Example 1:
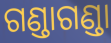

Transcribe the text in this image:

ଗଣ୍ଡାଗଣ୍ଡା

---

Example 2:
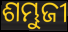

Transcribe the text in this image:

ଶମ୍ଭୁଜୀ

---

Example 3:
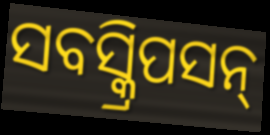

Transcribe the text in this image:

ସବସ୍କ୍ରିପସନ୍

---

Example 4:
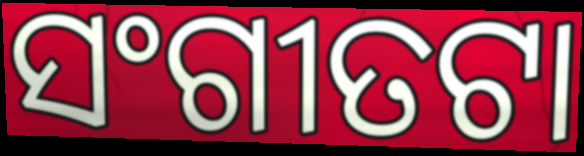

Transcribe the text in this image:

ସଂଗୀତଟା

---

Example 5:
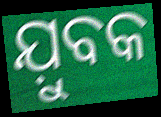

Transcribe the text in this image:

ଯ଼ୁବକ